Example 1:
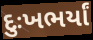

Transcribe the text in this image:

દુઃખભર્યાં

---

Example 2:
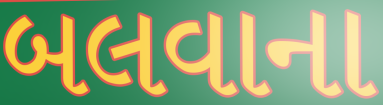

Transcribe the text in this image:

બલવાના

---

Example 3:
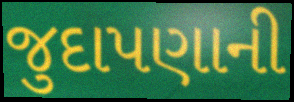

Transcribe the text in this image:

જુદાપણાની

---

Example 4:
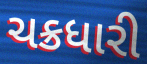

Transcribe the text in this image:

ચક્રધારી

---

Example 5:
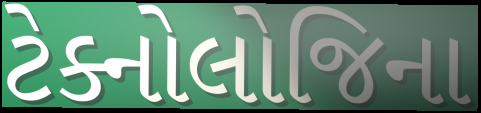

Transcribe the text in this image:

ટેક્નોલોજિના